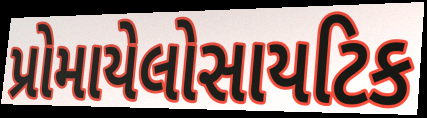
પ્રોમાયેલોસાયટિક